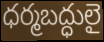
ధర్మబద్ధులై